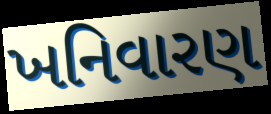
ખનિવારણ